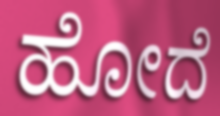
ಹೋದೆ